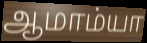
ஆமாம்யா